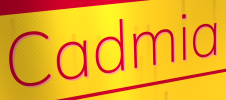
Cadmia